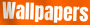
Wallpapers